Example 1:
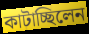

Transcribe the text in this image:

কাটাচ্ছিলেন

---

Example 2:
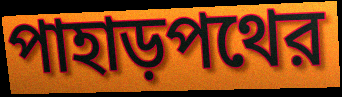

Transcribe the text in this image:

পাহাড়পথের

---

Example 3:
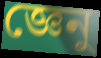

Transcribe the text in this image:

জ্ঞেনু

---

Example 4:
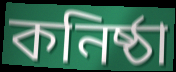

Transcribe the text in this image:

কনিষ্ঠা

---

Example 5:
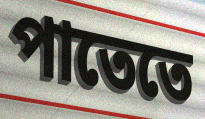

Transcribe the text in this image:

পাতেতে